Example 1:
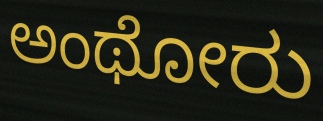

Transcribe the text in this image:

ಅಂಥೋರು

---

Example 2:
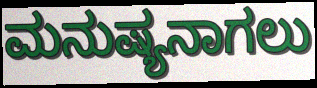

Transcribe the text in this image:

ಮನುಷ್ಯನಾಗಲು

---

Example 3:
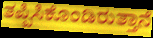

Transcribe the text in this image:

ತಪ್ಪಿಸಿಕೊಂಡಿರುತ್ತಾನೆ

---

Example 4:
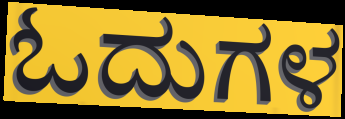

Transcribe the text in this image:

ಓದುಗಳ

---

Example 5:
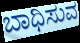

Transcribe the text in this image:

ಬಾಧಿಸುವ